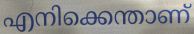
എനിക്കെന്താണ്